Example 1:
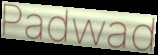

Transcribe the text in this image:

Padwad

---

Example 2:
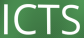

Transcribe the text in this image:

ICTS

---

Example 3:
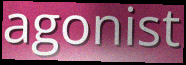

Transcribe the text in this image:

agonist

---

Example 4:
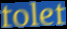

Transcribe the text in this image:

tolet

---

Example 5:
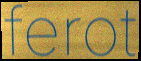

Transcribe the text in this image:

ferot